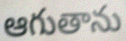
ఆగుతాను